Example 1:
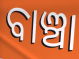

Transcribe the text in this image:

ବାଞ୍ଚା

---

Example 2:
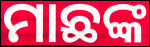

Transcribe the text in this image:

ମାଛଙ୍କ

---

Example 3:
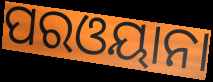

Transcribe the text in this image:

ପରଓୟାନା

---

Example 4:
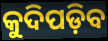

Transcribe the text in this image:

କୁଦିପଡ଼ିବ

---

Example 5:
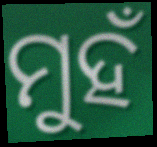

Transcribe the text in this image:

ମୁହଁ